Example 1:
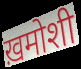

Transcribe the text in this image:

ख़मोशी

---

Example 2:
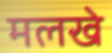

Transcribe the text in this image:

मलखे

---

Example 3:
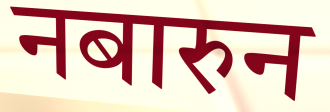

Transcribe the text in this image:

नबारुन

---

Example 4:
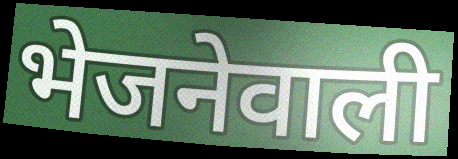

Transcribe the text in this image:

भेजनेवाली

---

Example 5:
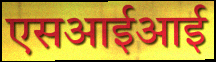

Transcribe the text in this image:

एसआईआई